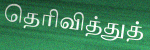
தெரிவித்துத்